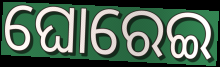
ଘୋରେଇ